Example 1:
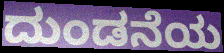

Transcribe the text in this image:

ದುಂಡನೆಯ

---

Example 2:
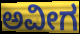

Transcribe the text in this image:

ಅವೀಗ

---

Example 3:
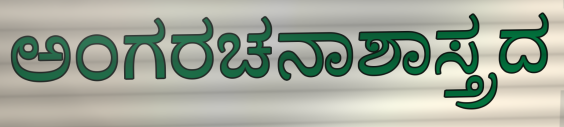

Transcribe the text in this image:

ಅಂಗರಚನಾಶಾಸ್ತ್ರದ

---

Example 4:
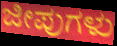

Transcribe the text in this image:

ಜೀಪುಗಳು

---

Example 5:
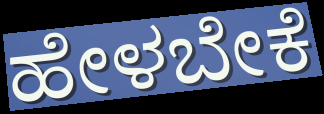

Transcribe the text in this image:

ಹೇಳಬೇಕೆ